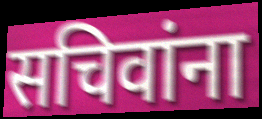
सचिवांना